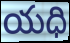
యధి